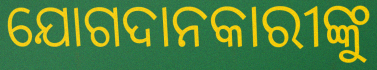
ଯୋଗଦାନକାରୀଙ୍କୁ